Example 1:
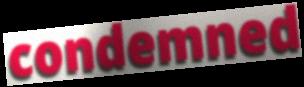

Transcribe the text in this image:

condemned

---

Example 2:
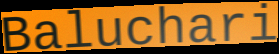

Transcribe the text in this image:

Baluchari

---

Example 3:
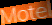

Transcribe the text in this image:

Motel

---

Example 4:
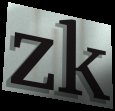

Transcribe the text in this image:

zk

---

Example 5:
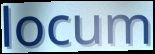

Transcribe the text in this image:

locum